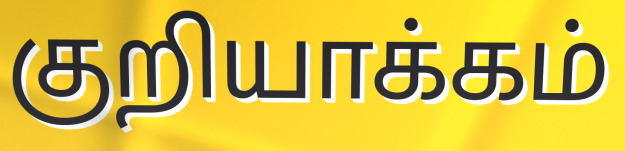
குறியாக்கம்